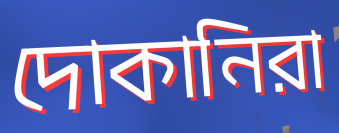
দোকানিরা